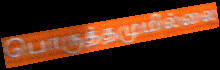
பொருத்தமுமில்லை